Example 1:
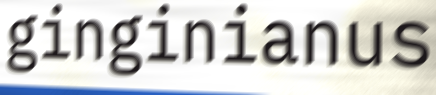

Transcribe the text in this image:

ginginianus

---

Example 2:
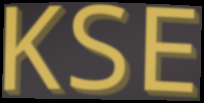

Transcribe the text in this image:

KSE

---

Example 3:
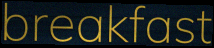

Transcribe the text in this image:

breakfast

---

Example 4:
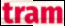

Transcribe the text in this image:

tram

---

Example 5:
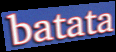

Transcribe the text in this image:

batata